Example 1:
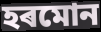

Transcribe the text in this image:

হৰমোন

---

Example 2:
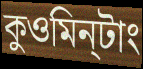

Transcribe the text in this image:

কুওমিন্‌টাং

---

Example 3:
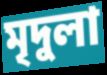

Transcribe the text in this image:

মৃদুলা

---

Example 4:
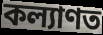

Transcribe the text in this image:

কল্যাণত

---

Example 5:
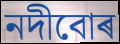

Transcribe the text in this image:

নদীবোৰ